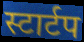
स्टार्टप